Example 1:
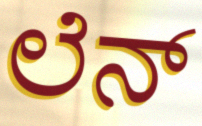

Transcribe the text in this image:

ಲೆನ್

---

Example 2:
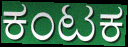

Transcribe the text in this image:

ಕಂಟಕ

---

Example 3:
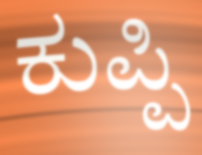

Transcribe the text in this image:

ಕುಪ್ಪಿ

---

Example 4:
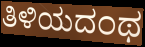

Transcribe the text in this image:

ತಿಳಿಯದಂಥ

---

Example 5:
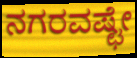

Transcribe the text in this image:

ನಗರವಷ್ಟೇ